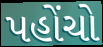
પહોંચો